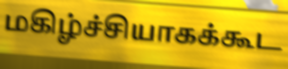
மகிழ்ச்சியாகக்கூட